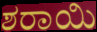
ಶರಾಯಿ